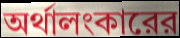
অর্থালংকারের